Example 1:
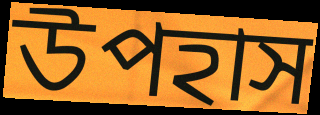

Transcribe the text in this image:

উপহাস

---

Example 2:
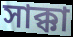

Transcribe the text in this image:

সাক্কা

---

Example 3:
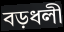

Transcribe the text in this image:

বড়ধলী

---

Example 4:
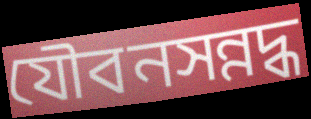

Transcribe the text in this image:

যৌবনসন্নদ্ধ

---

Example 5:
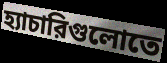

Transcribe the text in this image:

হ্যাচারিগুলোতে